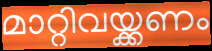
മാറ്റിവയ്ക്കണം